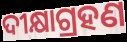
ଦୀକ୍ଷାଗ୍ରହଣ